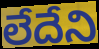
లేదేని